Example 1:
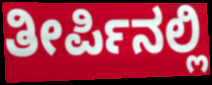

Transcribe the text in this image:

ತೀರ್ಪಿನಲ್ಲಿ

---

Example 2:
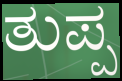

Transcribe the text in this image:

ತುಪ್ಪ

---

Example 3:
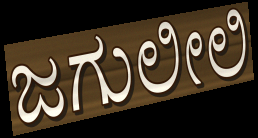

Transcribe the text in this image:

ಜಗುಲೀಲಿ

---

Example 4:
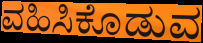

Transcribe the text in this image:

ವಹಿಸಿಕೊಡುವ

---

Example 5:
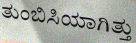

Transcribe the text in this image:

ತುಂಬಿಸಿಯಾಗಿತ್ತು